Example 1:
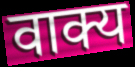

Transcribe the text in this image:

वाक्य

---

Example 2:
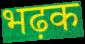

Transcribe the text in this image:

भढ़क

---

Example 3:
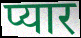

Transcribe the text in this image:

प्‍यार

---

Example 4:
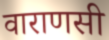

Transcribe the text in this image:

वाराणसी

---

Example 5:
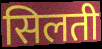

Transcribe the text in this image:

सिलती